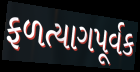
ફળત્યાગપૂર્વક